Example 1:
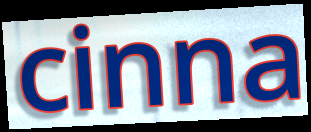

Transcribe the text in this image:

cinna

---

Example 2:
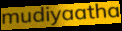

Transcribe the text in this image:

mudiyaatha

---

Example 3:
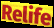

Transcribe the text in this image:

Relife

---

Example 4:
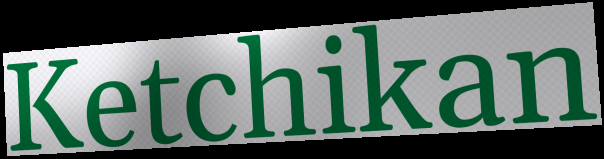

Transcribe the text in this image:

Ketchikan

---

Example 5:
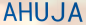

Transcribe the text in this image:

AHUJA